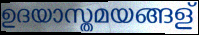
ഉദയാസ്തമയങ്ങള്